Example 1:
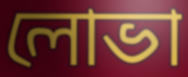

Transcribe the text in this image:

লোভা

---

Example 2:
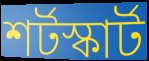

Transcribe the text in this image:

শর্টস্কার্ট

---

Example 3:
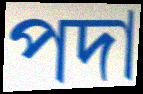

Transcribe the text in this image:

পদা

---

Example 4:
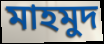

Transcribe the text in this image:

মাহমুদ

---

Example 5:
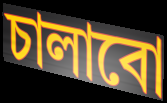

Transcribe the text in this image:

চালাবো